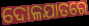
ଦୋଳଯାତରେ